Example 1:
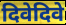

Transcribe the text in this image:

दिवेदिवे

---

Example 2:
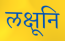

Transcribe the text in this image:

लक्षूनि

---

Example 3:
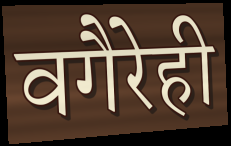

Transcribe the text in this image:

वगैरेही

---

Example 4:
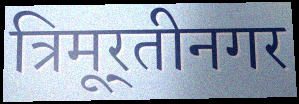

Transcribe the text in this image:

त्रिमूर्तीनगर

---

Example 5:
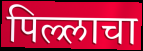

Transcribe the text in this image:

पिल्लाचा